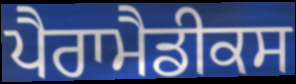
ਪੈਰਾਮੈਡੀਕਸ